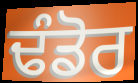
ਢੰਡੋਰ